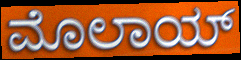
ಮೊಲಾಯ್